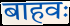
बाहवः